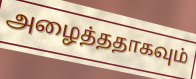
அழைத்ததாகவும்